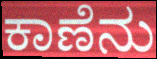
ಕಾಣೆನು